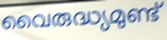
വൈരുദ്ധ്യമുണ്ട്